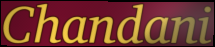
Chandani